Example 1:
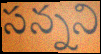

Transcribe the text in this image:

సన్నని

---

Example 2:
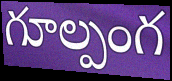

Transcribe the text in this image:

గూల్పంగ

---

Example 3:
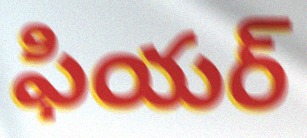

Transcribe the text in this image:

ఫియర్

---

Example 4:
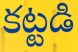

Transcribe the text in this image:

కట్టడి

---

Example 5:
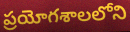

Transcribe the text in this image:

ప్రయోగశాలలోని